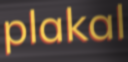
plakal